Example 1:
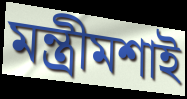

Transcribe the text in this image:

মন্ত্রীমশাই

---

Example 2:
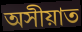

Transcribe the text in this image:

অসীয়াত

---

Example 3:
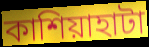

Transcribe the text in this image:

কাশিয়াহাটা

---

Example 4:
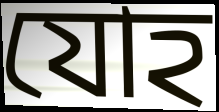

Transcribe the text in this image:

যোহ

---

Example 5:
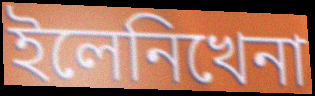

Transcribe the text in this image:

ইলেনিখেনা